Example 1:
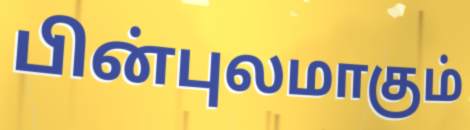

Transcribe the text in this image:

பின்புலமாகும்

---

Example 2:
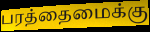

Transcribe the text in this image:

பரத்தைமைக்கு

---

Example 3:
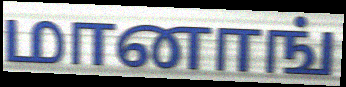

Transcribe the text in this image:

மானாங்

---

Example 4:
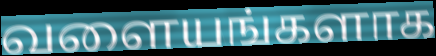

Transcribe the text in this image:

வளையங்களாக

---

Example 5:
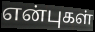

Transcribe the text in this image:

என்புகள்